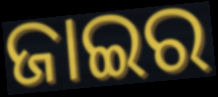
ଜାଇର